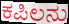
ಕಪಿಲನು